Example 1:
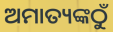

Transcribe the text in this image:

ଅମାତ୍ୟଙ୍କଠୁଁ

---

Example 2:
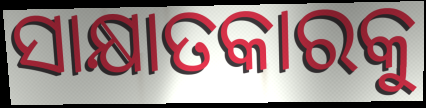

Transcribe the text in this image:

ସାକ୍ଷାତକାରକୁ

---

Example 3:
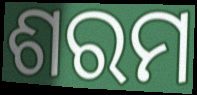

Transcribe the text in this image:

ଶରମ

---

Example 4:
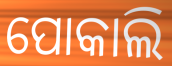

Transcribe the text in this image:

ପୋକାଲି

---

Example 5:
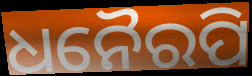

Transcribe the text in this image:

ଧନୈରପି